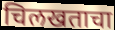
चिलखताचा